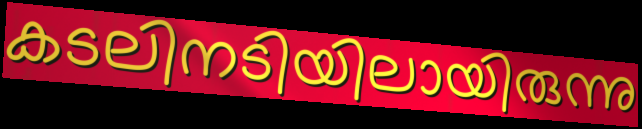
കടലിനടിയിലായിരുന്നു